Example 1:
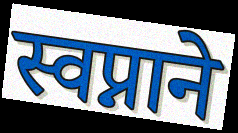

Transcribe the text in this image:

स्वप्नाने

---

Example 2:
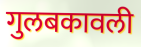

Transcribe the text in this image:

गुलबकावली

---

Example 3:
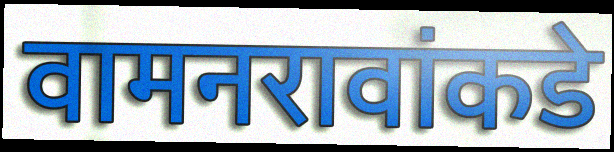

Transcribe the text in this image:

वामनरावांकडे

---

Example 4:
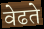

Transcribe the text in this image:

वेढते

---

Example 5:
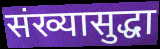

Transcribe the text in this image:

संख्यासुद्धा